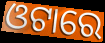
ଓଟାରେ